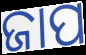
ଜାପ